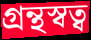
গ্রন্থস্বত্ব